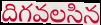
దిగవలసిన